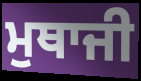
ਮੁਥਾਜੀ